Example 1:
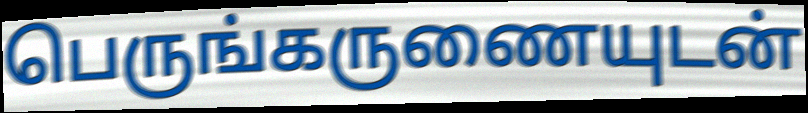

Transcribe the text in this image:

பெருங்கருணையுடன்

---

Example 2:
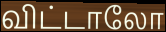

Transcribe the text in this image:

விட்டாலோ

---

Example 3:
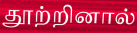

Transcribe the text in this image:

தூற்றினால்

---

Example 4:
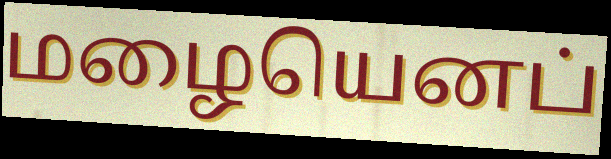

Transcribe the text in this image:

மழையெனப்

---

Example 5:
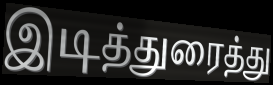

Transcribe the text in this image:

இடித்துரைத்து